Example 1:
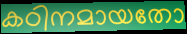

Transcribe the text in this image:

കഠിനമായതോ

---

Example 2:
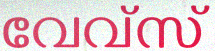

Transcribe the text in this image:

വേവ്സ്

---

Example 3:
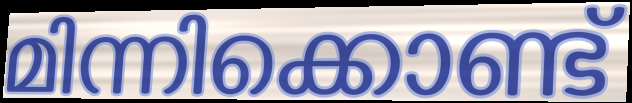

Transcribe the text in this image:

മിന്നിക്കൊണ്ട്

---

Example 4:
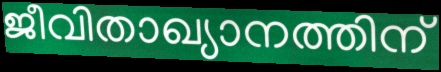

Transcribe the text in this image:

ജീവിതാഖ്യാനത്തിന്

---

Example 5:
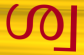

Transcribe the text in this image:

ശ്വ